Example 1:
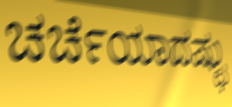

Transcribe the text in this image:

ಚರ್ಚೆಯಾದಷ್ಟು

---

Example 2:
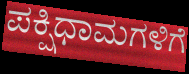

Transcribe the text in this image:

ಪಕ್ಷಿಧಾಮಗಳಿಗೆ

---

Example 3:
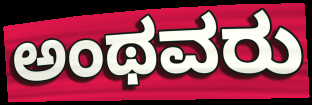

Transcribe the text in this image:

ಅಂಥವರು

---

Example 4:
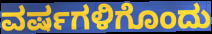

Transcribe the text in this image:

ವರ್ಷಗಳಿಗೊಂದು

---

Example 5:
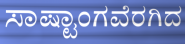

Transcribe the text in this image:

ಸಾಷ್ಟಾಂಗವೆರಗಿದ